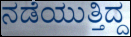
ನಡೆಯುತ್ತಿದ್ದ